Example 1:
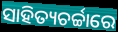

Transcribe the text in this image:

ସାହିତ୍ୟଚର୍ଚ୍ଚାରେ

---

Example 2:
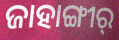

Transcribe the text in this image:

ଜାହାଙ୍ଗୀର୍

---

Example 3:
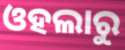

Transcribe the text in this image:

ଓହଲାରୁ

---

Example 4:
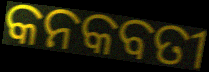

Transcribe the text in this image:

କନକବତୀ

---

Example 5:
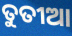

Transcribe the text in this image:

ତୁତୀଆ